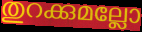
തുറക്കുമല്ലോ